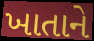
ખાતાને